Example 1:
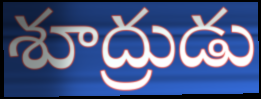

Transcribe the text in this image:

శూద్రుడు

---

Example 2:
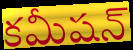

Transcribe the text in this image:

కమీషన్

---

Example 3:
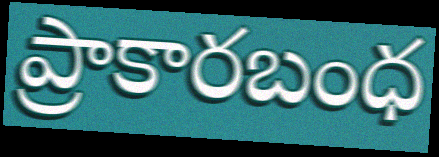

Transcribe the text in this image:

ప్రాకారబంధ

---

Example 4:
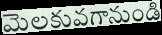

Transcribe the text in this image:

మెలకువగానుండి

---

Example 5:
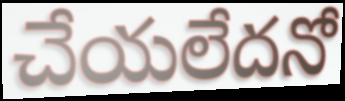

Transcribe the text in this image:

చేయలేదనో